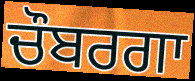
ਚੌਬਰਗਾ